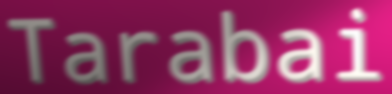
Tarabai